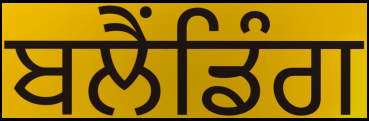
ਬਲੈਂਡਿੰਗ